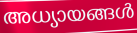
അധ്യായങ്ങൾ